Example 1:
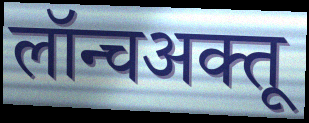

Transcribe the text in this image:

लॉन्चअक्तू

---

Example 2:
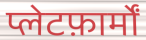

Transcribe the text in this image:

प्लेटफ़ार्मों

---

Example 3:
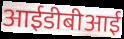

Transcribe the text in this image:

आईडीबीआई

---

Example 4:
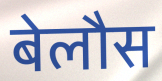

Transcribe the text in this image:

बेलौस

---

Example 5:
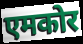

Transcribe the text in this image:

एमकोर